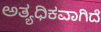
ಅತ್ಯಧಿಕವಾಗಿದೆ